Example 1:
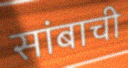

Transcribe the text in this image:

सांबाची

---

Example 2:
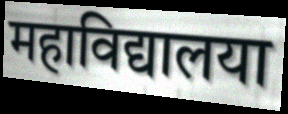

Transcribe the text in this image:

महाविद्यालया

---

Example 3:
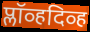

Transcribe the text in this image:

प्लॉव्हदिव्ह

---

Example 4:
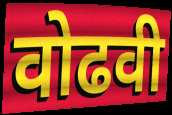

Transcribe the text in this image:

वोढवी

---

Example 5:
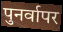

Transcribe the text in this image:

पुनर्वापर